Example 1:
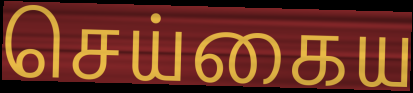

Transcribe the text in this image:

செய்கைய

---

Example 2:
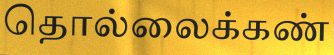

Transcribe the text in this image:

தொல்லைக்கண்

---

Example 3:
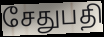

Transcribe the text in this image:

சேதுபதி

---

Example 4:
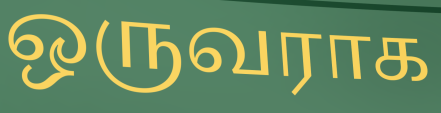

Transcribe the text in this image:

ஒருவராக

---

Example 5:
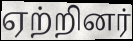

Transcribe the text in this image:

ஏற்றினர்